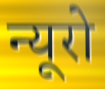
न्यूरो